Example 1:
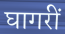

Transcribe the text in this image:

घागरीं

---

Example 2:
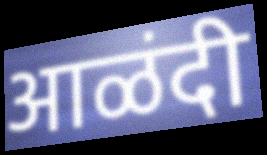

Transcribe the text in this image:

आळंदी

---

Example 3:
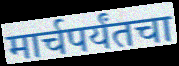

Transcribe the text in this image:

मार्चपर्यंतचा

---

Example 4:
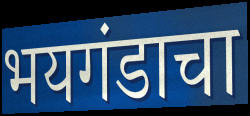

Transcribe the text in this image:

भयगंडाचा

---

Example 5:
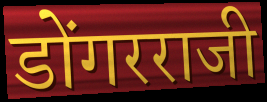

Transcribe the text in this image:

डोंगरराजी